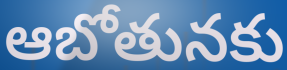
ఆబోతునకు